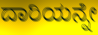
ದಾರಿಯನ್ನೇ